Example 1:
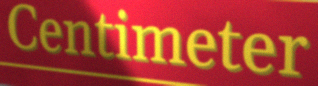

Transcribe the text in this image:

Centimeter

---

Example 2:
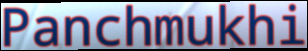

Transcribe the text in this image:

Panchmukhi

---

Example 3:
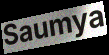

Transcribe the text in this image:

Saumya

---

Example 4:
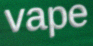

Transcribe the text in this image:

vape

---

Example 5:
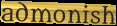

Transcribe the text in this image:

admonish